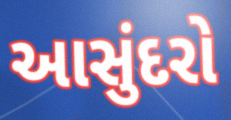
આસુંદરો